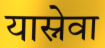
यास्नेवा